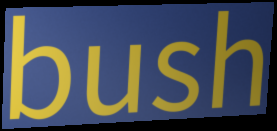
bush